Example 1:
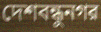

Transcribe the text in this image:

দেশবন্ধুনগর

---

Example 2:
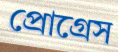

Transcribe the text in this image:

প্রোগ্রেস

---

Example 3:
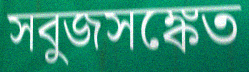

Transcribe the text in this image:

সবুজসঙ্কেত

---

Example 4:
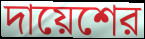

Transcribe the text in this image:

দায়েশের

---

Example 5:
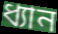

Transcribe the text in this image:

ধ্যান